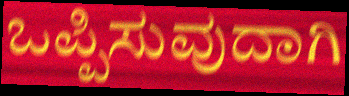
ಒಪ್ಪಿಸುವುದಾಗಿ